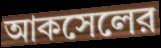
আকসেলের